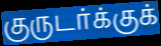
குருடர்க்குக்